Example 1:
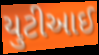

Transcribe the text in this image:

યુટીઆઈ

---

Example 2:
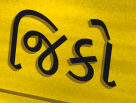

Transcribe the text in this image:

જિકો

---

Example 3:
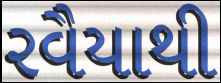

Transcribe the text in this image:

રવૈયાથી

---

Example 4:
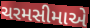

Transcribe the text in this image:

ચરમસીમાએ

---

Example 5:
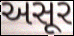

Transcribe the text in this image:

અસૂર